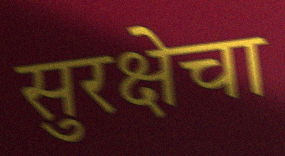
सुरक्षेचा